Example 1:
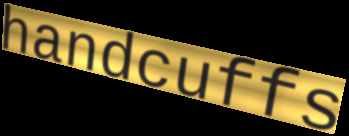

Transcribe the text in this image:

handcuffs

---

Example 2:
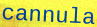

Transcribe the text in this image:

cannula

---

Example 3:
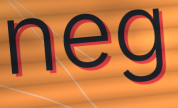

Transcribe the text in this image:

neg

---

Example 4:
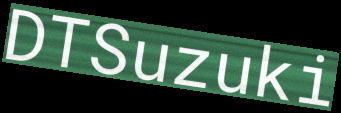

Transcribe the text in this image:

DTSuzuki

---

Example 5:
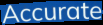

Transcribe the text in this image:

Accurate